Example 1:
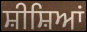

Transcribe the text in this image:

ਸ਼ੀਸ਼ਿਆਂ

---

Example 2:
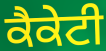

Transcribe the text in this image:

ਕੈਕੇਟੀ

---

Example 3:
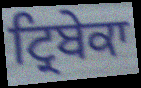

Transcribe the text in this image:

ਟ੍ਰਿਬੇਕਾ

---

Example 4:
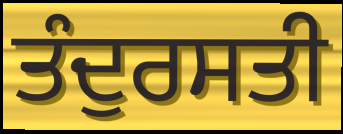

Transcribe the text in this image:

ਤੰਦੁਰਸਤੀ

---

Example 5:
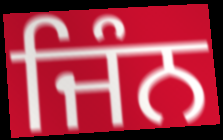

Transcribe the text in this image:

ਜਿੰਨ